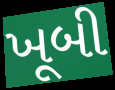
ખૂબી